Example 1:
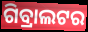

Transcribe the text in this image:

ଗିବ୍ରାଲଟର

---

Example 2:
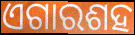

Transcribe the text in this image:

ଏଗାରଶହ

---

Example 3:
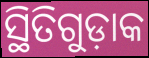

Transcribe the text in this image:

ସ୍ଥିତିଗୁଡ଼ାକ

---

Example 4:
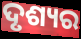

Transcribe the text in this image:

ଦୃଶ୍ୟର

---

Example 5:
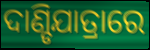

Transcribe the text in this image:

ଦାଣ୍ଡିଯାତ୍ରାରେ